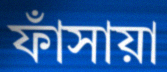
ফাঁসায়া